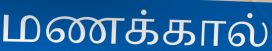
மணக்கால்